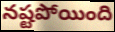
నష్టపోయింది